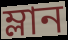
ম্লান